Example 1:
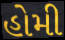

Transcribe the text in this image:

હોમી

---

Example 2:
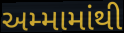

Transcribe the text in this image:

અમ્મામાંથી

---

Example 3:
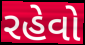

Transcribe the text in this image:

રહેવો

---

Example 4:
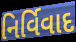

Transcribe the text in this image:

નિર્વિવાદ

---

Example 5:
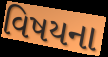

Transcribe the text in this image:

વિષયના